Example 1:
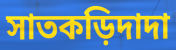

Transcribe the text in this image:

সাতকড়িদাদা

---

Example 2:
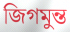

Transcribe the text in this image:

জিগমুন্ত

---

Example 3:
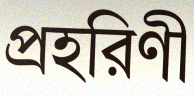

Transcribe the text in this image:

প্রহরিণী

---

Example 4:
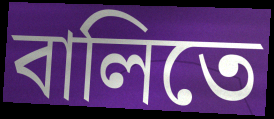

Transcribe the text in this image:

বালিতে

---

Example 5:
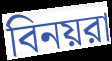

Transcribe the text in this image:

বিনয়রা